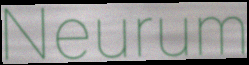
Neurum